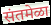
संतमेळा